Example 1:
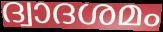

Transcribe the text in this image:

ദ്വാദശമം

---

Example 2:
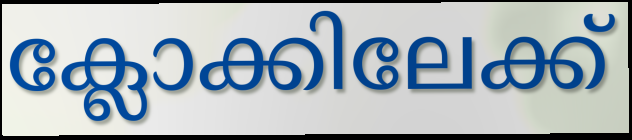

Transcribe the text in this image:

ക്ലോക്കിലേക്ക്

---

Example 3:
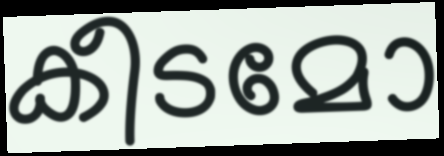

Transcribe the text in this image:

കീടമോ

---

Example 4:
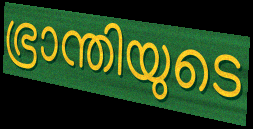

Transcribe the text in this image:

ഭ്രാന്തിയുടെ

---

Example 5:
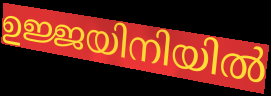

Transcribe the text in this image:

ഉജ്ജയിനിയിൽ